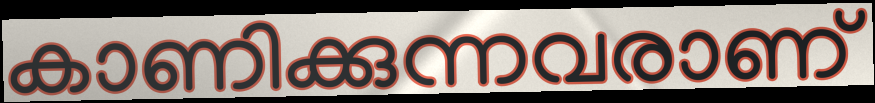
കാണിക്കുന്നവരാണ്